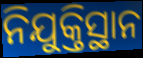
ନିଯୁକ୍ତିସ୍ଥାନ